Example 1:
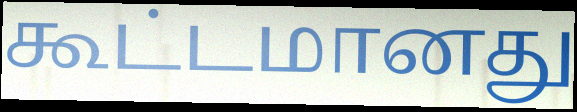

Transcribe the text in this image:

கூட்டமானது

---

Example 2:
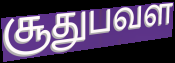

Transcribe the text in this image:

சூதுபவள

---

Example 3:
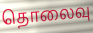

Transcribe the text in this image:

தொலைவு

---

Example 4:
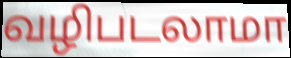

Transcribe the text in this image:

வழிபடலாமா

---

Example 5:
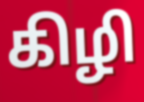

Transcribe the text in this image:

கிழி